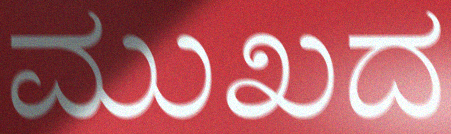
ಮುಖದ